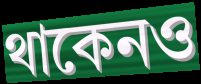
থাকেনও